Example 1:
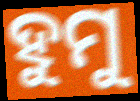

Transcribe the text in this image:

ହୁମୁ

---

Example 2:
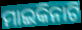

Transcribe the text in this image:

ମାଇକିନାଟି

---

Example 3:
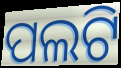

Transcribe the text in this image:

ପଲଟି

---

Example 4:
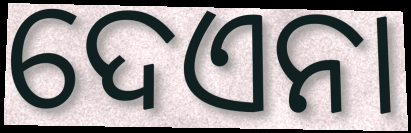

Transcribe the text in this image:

ଦେଏନା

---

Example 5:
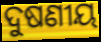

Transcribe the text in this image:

ଦୁଷଣୀୟ